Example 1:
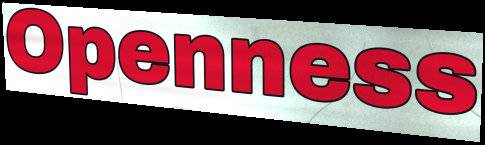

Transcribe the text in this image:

Openness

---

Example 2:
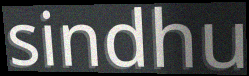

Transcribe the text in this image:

sindhu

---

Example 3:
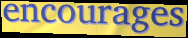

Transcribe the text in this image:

encourages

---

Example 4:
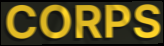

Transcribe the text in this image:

CORPS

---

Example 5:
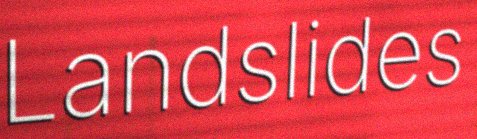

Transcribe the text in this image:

Landslides